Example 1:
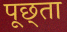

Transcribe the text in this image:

पूछ्ता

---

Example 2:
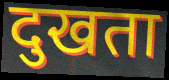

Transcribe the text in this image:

दुखता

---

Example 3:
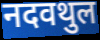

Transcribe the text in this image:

नदवथुल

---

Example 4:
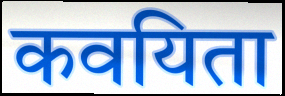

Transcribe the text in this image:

कवयिता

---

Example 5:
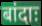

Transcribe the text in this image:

बांदाः